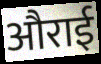
औराई